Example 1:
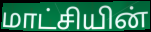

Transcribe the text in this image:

மாட்சியின்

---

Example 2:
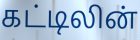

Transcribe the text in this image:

கட்டிலின்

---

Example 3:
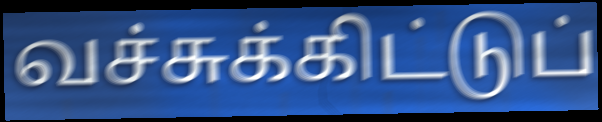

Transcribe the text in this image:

வச்சுக்கிட்டுப்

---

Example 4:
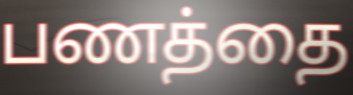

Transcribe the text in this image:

பணத்தை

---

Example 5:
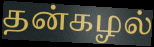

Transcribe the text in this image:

தன்கழல்